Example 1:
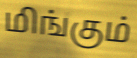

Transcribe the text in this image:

மிங்கும்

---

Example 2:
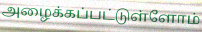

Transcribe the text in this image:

அழைக்கப்பட்டுள்ளோம்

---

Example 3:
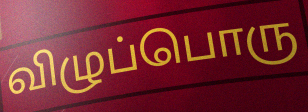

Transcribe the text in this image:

விழுப்பொரு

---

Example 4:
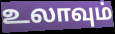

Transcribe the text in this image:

உலாவும்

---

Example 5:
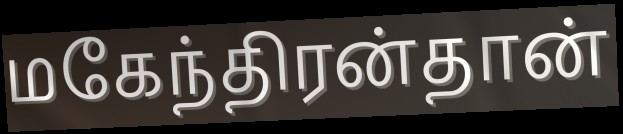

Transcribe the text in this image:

மகேந்திரன்தான்